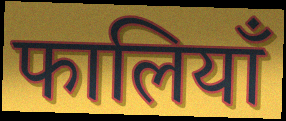
फालियाँ